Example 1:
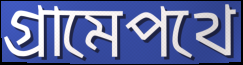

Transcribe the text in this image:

গ্রামেপথে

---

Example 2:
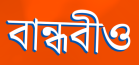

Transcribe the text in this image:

বান্ধবীও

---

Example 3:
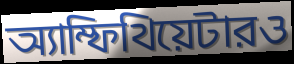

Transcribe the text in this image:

অ্যাম্ফিথিয়েটারও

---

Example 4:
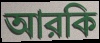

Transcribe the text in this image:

আরকি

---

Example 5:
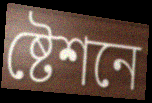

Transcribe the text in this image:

ষ্টেশনে